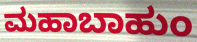
ಮಹಾಬಾಹುಂ